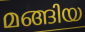
മങ്ങിയ